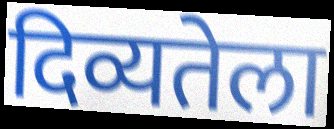
दिव्यतेला